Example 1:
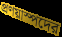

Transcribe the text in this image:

প্রণয়াস্পদের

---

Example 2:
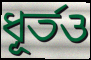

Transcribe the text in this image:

ধূর্তও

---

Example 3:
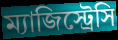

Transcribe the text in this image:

ম্যাজিস্ট্রেসি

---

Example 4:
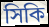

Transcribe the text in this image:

সিকি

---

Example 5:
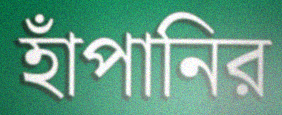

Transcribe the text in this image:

হাঁপানির